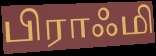
பிராஃமி